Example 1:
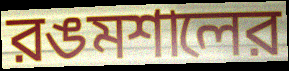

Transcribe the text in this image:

রঙমশালের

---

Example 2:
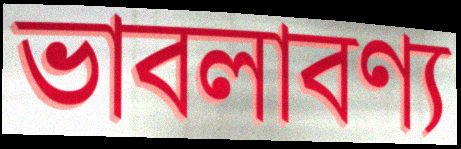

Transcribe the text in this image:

ভাবলাবণ্য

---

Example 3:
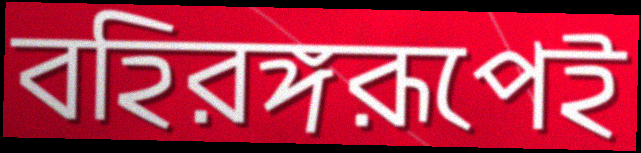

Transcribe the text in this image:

বহিরঙ্গরূপেই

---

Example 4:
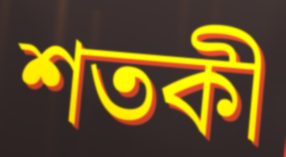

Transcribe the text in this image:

শতকী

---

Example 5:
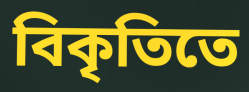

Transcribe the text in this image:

বিকৃতিতে